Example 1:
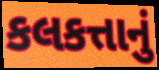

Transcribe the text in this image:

કલકત્તાનું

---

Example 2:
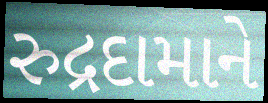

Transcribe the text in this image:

રુદ્રદામાને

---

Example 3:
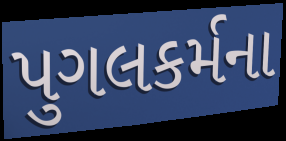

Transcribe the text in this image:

પુગલકર્મના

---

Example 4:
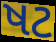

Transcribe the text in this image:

ષટ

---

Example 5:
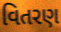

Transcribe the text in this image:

વિતરણ